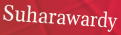
Suharawardy